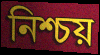
নিশ্চয়